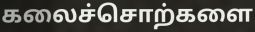
கலைச்சொற்களை